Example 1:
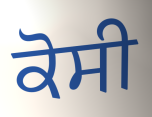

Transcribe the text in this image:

ਕੋਸੀ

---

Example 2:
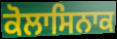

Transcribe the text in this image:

ਕੋਲਾਸਿਨਾਕ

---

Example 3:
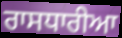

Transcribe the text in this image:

ਰਾਸਧਾਰੀਆ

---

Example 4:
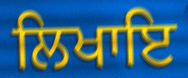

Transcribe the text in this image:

ਲਿਖਾਇ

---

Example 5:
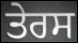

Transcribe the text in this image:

ਤੇਰਸ